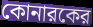
কোনারকের